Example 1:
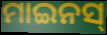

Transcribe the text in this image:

ମାଇନସ୍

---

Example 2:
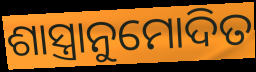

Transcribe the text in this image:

ଶାସ୍ତ୍ରାନୁମୋଦିତ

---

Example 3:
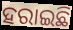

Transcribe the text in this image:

ହରାଇଛି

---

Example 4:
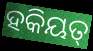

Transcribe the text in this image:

ହକିୟତ୍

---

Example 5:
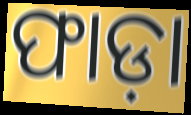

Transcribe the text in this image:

ଫାଡ଼ା